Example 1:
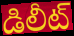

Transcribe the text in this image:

డిలీట్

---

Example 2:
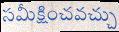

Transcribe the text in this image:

సమీక్షించవచ్చు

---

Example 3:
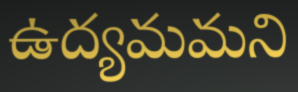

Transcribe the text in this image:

ఉద్యమమని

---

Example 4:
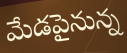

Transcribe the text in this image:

మేడపైనున్న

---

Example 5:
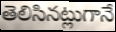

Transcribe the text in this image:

తెలిసినట్లుగానే